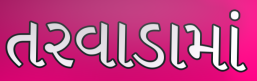
તરવાડામાં